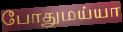
போதுமய்யா